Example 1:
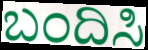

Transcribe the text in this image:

ಬಂದಿಸಿ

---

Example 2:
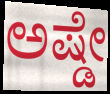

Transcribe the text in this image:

ಅಷ್ಡೇ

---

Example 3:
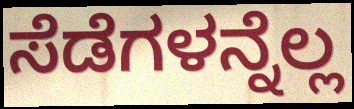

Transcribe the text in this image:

ಸೆಡೆಗಳನ್ನೆಲ್ಲ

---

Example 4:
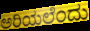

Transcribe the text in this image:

ಅರಿಯಲೆಂದು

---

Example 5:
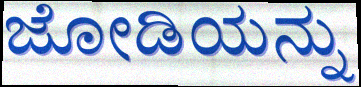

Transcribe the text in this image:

ಜೋಡಿಯನ್ನು